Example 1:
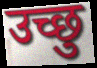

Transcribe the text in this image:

उच्छु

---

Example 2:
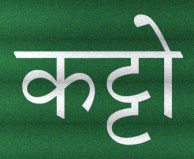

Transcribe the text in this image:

कट्टो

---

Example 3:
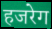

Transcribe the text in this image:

हजरेग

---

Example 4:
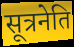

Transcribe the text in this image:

सूत्रनेति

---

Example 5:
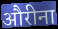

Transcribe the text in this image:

औरीना